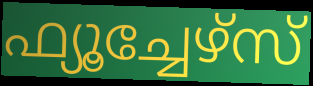
ഫ്യൂച്ചേഴ്സ്